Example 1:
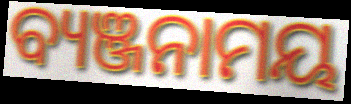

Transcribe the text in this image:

ବ୍ୟଞ୍ଜନାମୟ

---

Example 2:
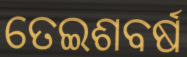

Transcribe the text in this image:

ତେଇଶବର୍ଷ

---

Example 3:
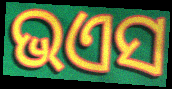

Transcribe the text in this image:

ଭଏସ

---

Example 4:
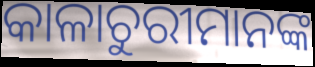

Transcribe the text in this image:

କାଳାଚୁରୀମାନଙ୍କ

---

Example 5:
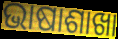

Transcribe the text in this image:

ଭାଷାଶାଖା